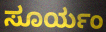
ಸೂರ್ಯಂ